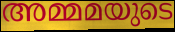
അമ്മമയുടെ